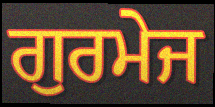
ਗੁਰਮੇਜ